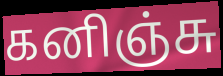
கனிஞ்சு